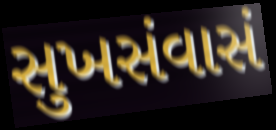
સુખસંવાસં